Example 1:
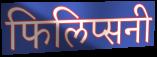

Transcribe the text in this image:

फिलिप्सनी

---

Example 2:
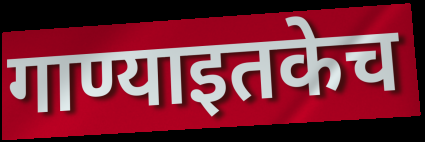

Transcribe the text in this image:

गाण्याइतकेच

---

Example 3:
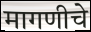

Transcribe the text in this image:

मागणीचे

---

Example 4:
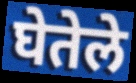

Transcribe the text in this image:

घेतेले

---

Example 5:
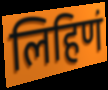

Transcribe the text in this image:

लिहिणं